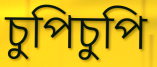
চুপিচুপি